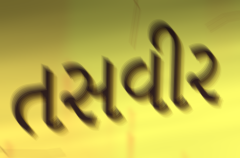
તસવીર